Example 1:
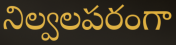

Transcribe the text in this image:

నిల్వలపరంగా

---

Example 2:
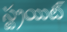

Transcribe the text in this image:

స్ట్రయిట్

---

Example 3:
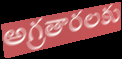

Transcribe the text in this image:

అగ్రతారలకు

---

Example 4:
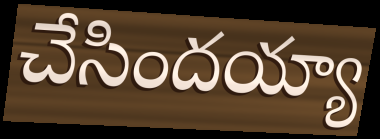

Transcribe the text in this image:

చేసిందయ్యా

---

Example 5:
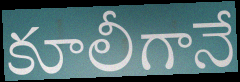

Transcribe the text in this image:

కూలీగానే